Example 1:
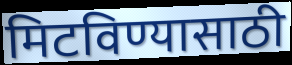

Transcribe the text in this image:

मिटविण्यासाठी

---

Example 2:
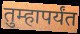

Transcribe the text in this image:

तुम्हापर्यंत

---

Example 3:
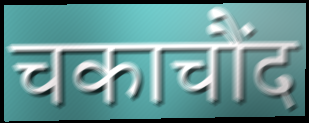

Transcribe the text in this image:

चकाचौंद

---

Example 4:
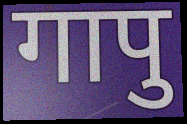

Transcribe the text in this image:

गापु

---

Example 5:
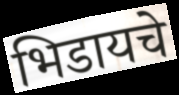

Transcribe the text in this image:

भिडायचे